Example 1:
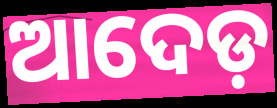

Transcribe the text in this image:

ଆଦେଡ଼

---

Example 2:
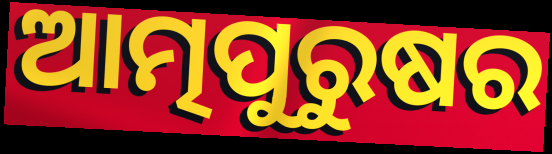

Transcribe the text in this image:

ଆତ୍ମପୁରୁଷର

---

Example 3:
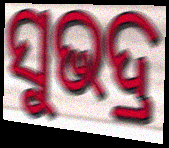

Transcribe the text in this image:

ସୁଭଦ୍ର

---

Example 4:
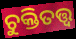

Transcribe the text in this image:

ଚୁକ୍ତିତତ୍ତ୍ଵ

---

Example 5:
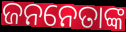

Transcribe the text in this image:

ଜନନେତାଙ୍କ